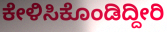
ಕೇಳಿಸಿಕೊಂಡಿದ್ದೀರಿ